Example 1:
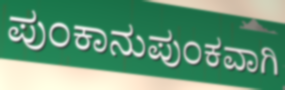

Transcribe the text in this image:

ಪುಂಕಾನುಪುಂಕವಾಗಿ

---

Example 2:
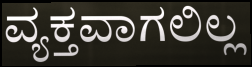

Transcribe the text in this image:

ವ್ಯಕ್ತವಾಗಲಿಲ್ಲ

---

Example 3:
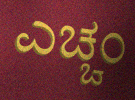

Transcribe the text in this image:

ಎಚ್ಚಂ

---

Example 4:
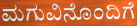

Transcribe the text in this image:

ಮಗುವಿನೊಂದಿಗೆ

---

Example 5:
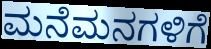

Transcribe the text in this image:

ಮನೆಮನಗಳಿಗೆ